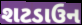
શટડાઉન